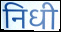
निधी